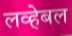
लव्हेबल